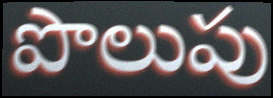
పొలుపు